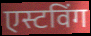
एस्टविंग